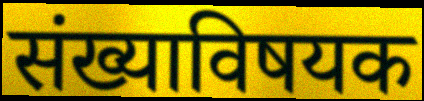
संख्याविषयक